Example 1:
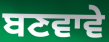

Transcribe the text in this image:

ਬਣਵਾਵੇ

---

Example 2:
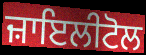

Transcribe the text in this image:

ਜ਼ਾਇਲੀਟੋਲ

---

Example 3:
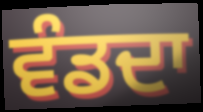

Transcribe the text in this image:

ਵੰਡਦਾ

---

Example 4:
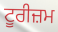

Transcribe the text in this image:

ਟੂਰੀਜ਼ਮ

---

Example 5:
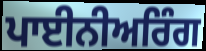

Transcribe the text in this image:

ਪਾਈਨੀਅਰਿੰਗ